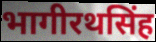
भागीरथसिंह